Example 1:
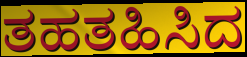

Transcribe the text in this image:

ತಹತಹಿಸಿದ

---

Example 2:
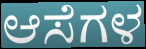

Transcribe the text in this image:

ಆಸೆಗಳ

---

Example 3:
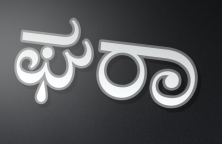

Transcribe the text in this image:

ಘರಾ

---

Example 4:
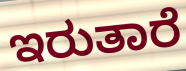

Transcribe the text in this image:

ಇರುತಾರೆ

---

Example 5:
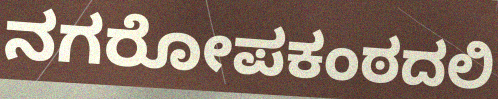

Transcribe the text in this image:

ನಗರೋಪಕಂಠದಲಿ